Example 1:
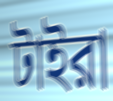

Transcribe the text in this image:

টাইরা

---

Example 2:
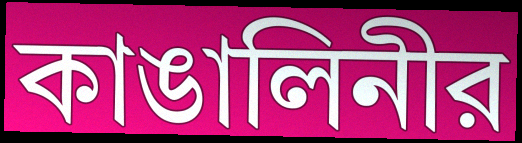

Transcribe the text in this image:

কাঙালিনীর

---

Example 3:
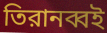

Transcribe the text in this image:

তিরানব্বই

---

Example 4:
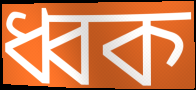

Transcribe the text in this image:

ধ্বক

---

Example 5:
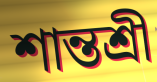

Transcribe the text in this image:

শান্তশ্রী